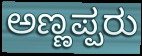
ಅಣ್ಣಪ್ಪರು